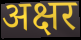
अक्षर